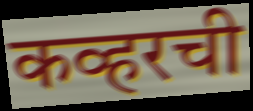
कव्हरची